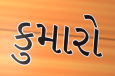
કુમારો